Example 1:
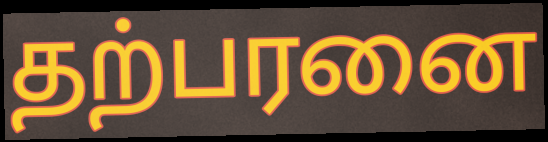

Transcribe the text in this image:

தற்பரனை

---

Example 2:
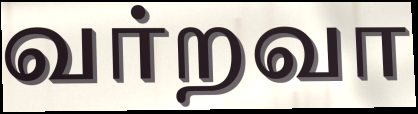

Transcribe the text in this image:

வர்றவா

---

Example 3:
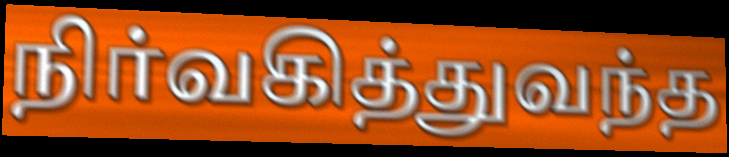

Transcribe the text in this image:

நிர்வகித்துவந்த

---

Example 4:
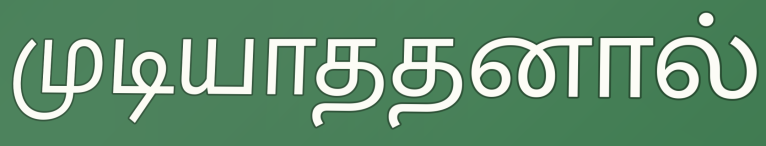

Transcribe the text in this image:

முடியாததனால்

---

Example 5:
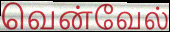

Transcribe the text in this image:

வென்வேல்